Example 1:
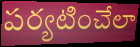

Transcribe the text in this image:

పర్యటించేలా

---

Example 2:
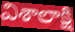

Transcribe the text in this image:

విశాలాక్షి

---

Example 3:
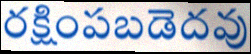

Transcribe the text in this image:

రక్షింపబడెదవు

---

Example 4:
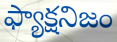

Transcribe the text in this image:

ఫ్యాక్షనిజం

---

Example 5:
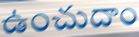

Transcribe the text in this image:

ఉంచుదాం